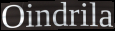
Oindrila